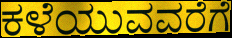
ಕಳೆಯುವವರೆಗೆ